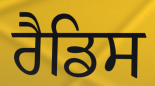
ਰੈਡਿਸ